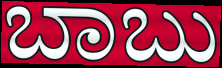
ಬಾಬು